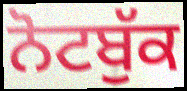
ਨੋਟਬੁੱਕ